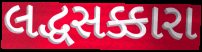
લદ્ધસક્કારા